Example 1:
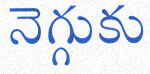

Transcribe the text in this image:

నెగ్గుకు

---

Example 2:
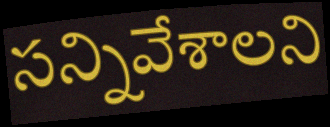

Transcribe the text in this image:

సన్నివేశాలని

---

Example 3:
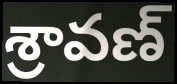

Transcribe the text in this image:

శ్రావణ్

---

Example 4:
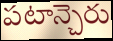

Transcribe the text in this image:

పటాన్చెరు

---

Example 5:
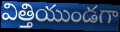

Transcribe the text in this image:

విత్తియుండగా